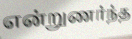
என்றுணர்ந்த